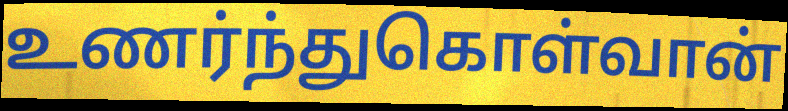
உணர்ந்துகொள்வான்